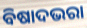
ବିଷାଦଭରା